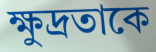
ক্ষুদ্রতাকে